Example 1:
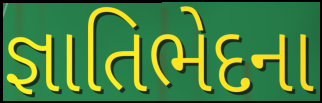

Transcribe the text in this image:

જ્ઞાતિભેદના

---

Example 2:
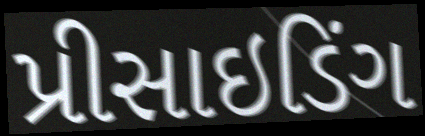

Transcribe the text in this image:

પ્રીસાઇડિંગ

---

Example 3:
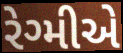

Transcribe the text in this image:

રેગ્મીએ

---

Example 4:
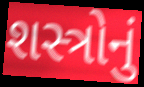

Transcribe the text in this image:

શસ્ત્રોનું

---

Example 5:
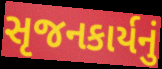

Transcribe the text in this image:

સૃજનકાર્યનું